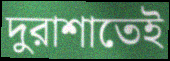
দুরাশাতেই